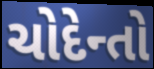
ચોદેન્તો